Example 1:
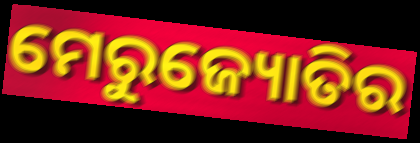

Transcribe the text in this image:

ମେରୁଜ୍ୟୋତିର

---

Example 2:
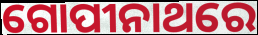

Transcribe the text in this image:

ଗୋପୀନାଥରେ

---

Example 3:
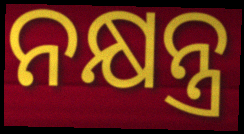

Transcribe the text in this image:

ନକ୍ଷନ୍ତ୍ର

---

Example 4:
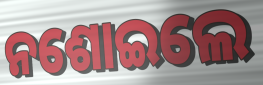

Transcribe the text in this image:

ନଶୋଇଲେ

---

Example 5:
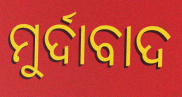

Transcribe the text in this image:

ମୁର୍ଦାବାଦ